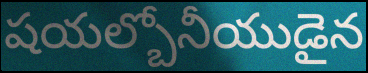
షయల్బోనీయుడైన